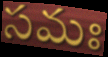
సమః